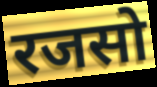
रजसो